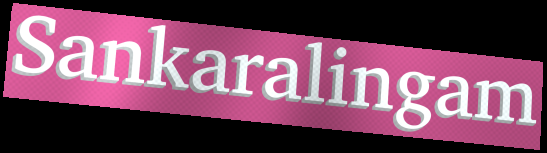
Sankaralingam